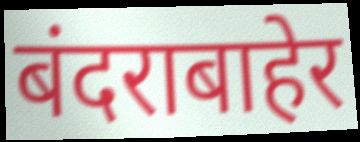
बंदराबाहेर